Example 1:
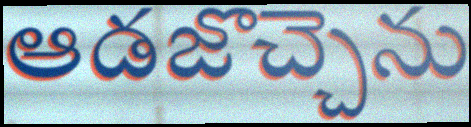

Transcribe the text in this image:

ఆడజొచ్చెను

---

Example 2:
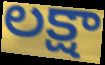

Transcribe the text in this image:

లక్షా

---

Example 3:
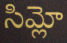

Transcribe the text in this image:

సిమ్లో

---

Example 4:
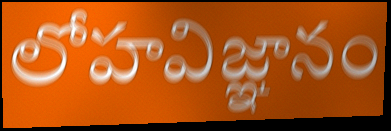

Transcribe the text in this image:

లోహవిజ్ఞానం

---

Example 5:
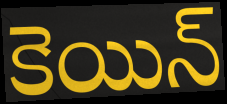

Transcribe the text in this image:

కెయిన్